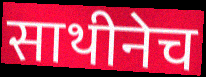
साथीनेच